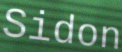
Sidon